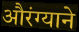
औरंग्याने